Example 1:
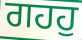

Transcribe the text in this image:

ਗਹਹੁ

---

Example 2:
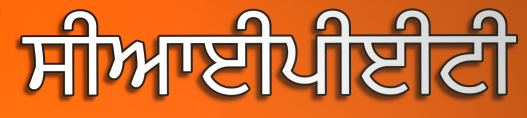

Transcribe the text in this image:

ਸੀਆਈਪੀਈਟੀ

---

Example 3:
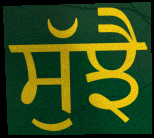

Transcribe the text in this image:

ਸੁੱਝੈ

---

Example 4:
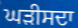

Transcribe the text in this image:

ਘੜੀਸਦਾ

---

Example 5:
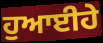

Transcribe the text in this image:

ਹੁਆਈਹੇ